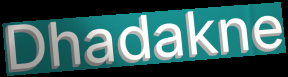
Dhadakne